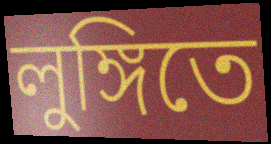
লুঙ্গিতে